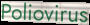
Poliovirus